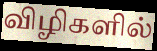
விழிகளில்